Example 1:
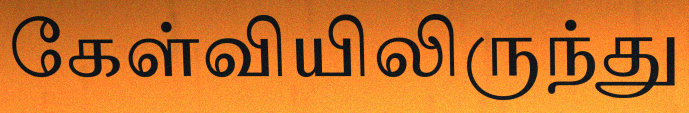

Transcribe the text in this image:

கேள்வியிலிருந்து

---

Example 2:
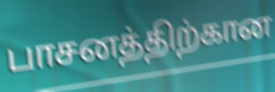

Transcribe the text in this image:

பாசனத்திற்கான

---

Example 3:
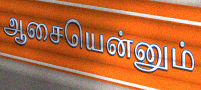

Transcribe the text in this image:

ஆசையென்னும்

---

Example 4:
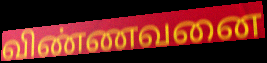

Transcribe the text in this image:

விண்ணவனை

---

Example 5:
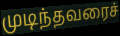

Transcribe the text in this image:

முடிந்தவரைச்